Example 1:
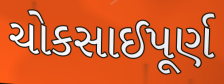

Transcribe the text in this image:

ચોકસાઈપૂર્ણ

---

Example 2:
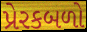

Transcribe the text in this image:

પ્રેરકબળો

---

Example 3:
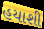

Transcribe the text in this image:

હયાશી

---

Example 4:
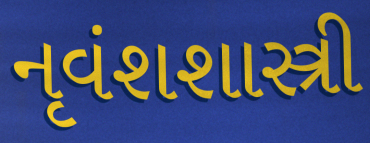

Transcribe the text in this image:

નૃવંશશાસ્ત્રી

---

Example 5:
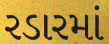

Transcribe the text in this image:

રડારમાં